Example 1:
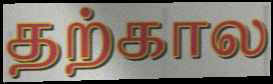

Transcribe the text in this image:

தற்கால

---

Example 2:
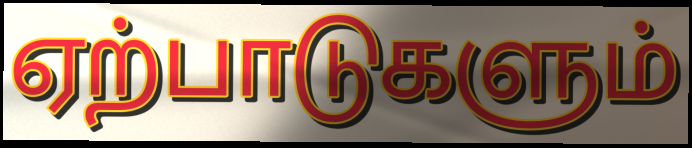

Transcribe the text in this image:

ஏற்பாடுகளும்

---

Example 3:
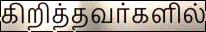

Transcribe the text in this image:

கிறித்தவர்களில்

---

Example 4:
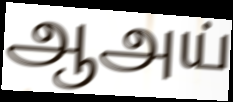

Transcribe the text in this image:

ஆஅய்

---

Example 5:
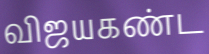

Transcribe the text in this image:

விஜயகண்ட